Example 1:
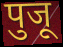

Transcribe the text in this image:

पुजू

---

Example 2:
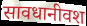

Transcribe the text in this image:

सावधानीवश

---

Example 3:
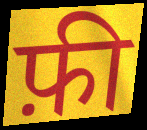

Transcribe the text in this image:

फ़ी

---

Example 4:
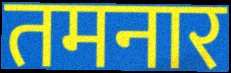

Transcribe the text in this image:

तमनार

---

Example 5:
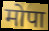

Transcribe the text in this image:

मोपा